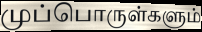
முப்பொருள்களும்